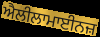
ਐਲੀਲਾਮਾਈਨਜ਼